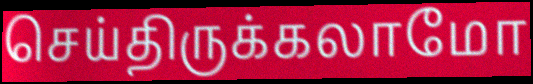
செய்திருக்கலாமோ